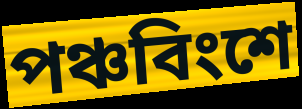
পঞ্চবিংশে